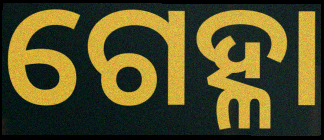
ଗେହ୍ଳା